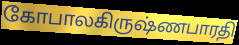
கோபாலகிருஷ்ணபாரதி